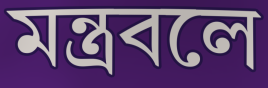
মন্ত্রবলে